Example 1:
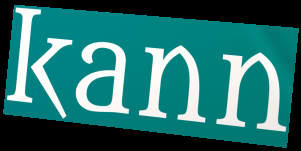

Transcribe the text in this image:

kann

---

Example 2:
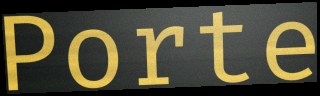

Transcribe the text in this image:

Porte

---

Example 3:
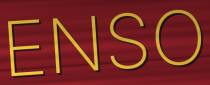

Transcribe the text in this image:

ENSO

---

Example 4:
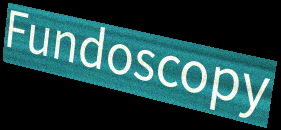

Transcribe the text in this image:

Fundoscopy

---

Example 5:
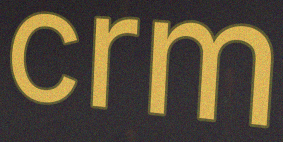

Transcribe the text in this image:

crm